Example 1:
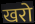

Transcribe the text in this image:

खरो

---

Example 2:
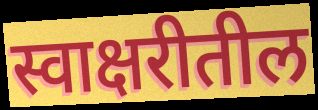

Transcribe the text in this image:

स्वाक्षरीतील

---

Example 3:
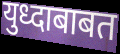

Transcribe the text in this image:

युध्दाबाबत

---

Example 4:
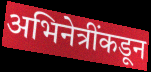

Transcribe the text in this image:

अभिनेत्रींकडून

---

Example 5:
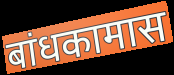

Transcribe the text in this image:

बांधकामास